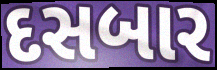
દસબાર